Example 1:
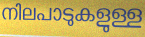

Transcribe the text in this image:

നിലപാടുകളുള്ള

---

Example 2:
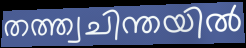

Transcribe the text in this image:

തത്ത്വചിന്തയിൽ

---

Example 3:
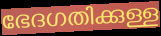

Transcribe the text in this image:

ഭേദഗതിക്കുള്ള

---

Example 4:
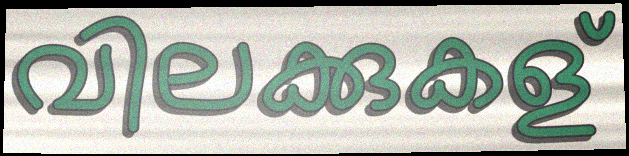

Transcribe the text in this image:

വിലക്കുകള്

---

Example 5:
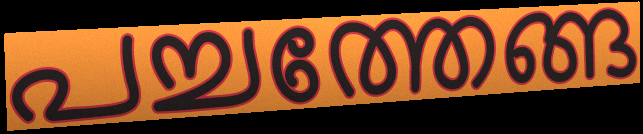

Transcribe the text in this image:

പച്ചത്തേങ്ങ